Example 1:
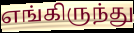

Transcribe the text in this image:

எங்கிருந்து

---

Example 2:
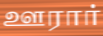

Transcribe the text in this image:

ஊரார்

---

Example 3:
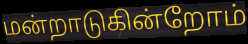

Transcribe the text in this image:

மன்றாடுகின்றோம்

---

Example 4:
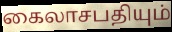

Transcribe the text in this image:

கைலாசபதியும்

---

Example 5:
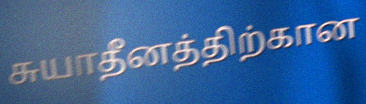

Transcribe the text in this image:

சுயாதீனத்திற்கான